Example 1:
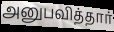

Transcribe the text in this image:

அனுபவித்தார்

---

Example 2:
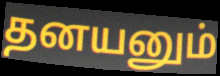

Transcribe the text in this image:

தனயனும்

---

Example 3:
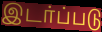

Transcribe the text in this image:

இடர்ப்படு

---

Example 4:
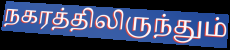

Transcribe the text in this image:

நகரத்திலிருந்தும்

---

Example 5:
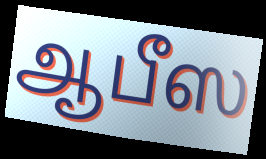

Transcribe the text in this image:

ஆபீஸ